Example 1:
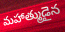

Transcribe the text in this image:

మహాత్ముడైన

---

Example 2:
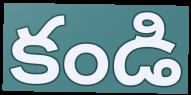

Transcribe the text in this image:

కండి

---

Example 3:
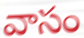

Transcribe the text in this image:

వాసం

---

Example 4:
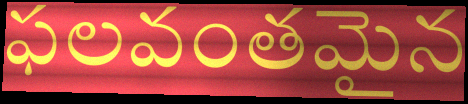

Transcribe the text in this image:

ఫలవంతమైన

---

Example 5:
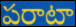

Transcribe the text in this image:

పరాటా